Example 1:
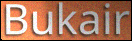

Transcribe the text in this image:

Bukair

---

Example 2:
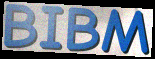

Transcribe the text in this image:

BIBM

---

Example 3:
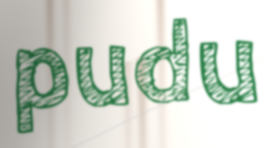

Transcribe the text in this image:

pudu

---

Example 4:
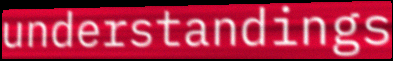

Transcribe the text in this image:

understandings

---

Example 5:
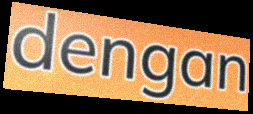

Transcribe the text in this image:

dengan